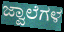
ಜ್ವಾಲೆಗಳ